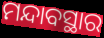
ମନ୍ଦାବସ୍ଥାର